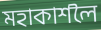
মহাকাশলৈ